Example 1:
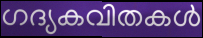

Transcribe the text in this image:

ഗദ്യകവിതകൾ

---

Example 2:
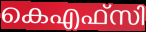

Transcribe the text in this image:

കെഎഫ്സി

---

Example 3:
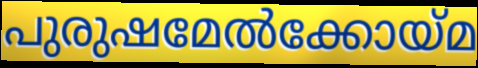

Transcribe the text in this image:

പുരുഷമേൽക്കോയ്മ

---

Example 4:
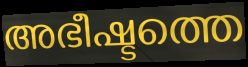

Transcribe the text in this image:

അഭീഷ്ടത്തെ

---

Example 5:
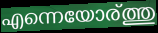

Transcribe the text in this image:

എന്നെയോര്ത്തു